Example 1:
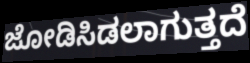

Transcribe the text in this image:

ಜೋಡಿಸಿಡಲಾಗುತ್ತದೆ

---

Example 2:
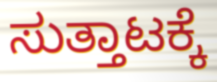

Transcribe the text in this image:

ಸುತ್ತಾಟಕ್ಕೆ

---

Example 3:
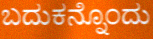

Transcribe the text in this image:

ಬದುಕನ್ನೊಂದು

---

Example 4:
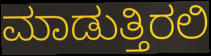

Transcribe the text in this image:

ಮಾಡುತ್ತಿರಲಿ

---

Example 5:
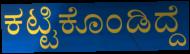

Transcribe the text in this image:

ಕಟ್ಟಿಕೊಂಡಿದ್ದೆ